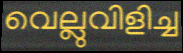
വെല്ലുവിളിച്ച